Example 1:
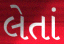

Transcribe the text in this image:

લેતાં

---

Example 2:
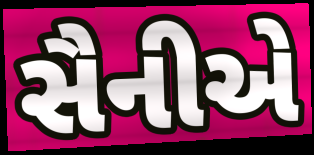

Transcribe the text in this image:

સૈનીએ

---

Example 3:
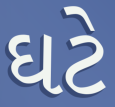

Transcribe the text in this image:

ઘટે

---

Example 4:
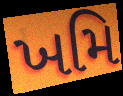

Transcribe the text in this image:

ખમિ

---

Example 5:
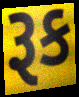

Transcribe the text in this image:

રૂક